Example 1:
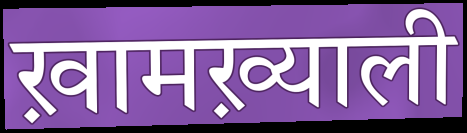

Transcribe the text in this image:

ख़ामख़्याली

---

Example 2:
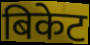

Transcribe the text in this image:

बिकेट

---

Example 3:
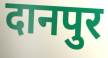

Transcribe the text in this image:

दानपुर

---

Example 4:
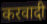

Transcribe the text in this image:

करवादी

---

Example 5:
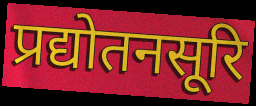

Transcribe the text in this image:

प्रद्योतनसूरि